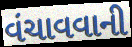
વંચાવવાની